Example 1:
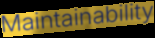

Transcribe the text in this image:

Maintainability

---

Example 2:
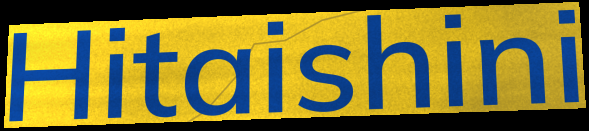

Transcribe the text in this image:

Hitaishini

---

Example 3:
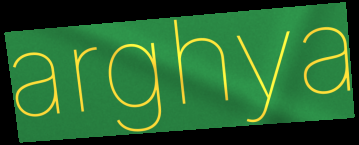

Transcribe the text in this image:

arghya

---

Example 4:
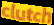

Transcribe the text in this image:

clutch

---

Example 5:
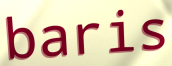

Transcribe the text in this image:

baris